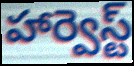
హార్వెస్ట్